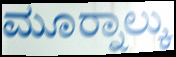
ಮೂರ‍್ನಾಲ್ಕು